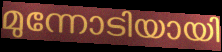
മുന്നോടിയായി